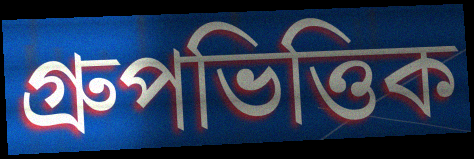
গ্রুপভিত্তিক